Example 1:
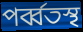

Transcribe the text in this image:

পর্ব্বতস্থ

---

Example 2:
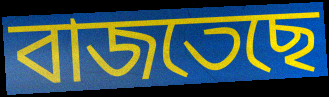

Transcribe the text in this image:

বাজতেছে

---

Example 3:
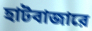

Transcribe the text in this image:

হাটবাজারে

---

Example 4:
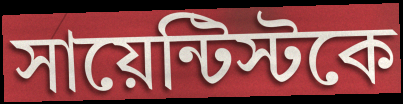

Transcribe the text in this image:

সায়েন্টিস্টকে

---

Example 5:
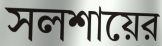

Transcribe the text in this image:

সলশায়ের